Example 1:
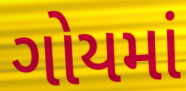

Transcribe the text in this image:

ગોયમાં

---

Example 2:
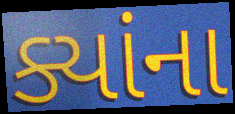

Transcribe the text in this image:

ક્યાંના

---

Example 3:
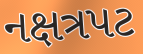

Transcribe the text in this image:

નક્ષત્રપટ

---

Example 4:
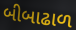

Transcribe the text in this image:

બીબાઢાળ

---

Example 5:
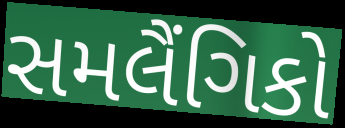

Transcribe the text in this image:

સમલૈંગિકો